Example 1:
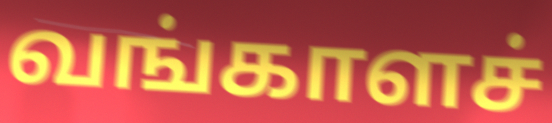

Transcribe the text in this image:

வங்காளச்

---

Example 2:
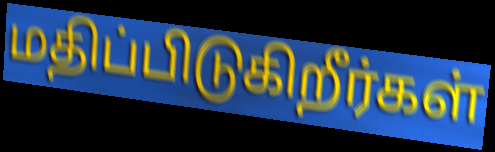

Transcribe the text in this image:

மதிப்பிடுகிறீர்கள்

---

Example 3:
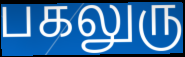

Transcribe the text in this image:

பகலுரு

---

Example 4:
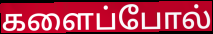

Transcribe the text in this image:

களைப்போல்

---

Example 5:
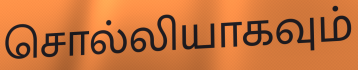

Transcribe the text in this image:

சொல்லியாகவும்